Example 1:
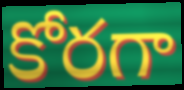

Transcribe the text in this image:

కోరగా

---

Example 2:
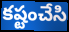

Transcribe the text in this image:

కష్టంచేసి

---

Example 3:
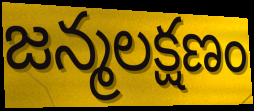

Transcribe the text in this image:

జన్మలక్షణం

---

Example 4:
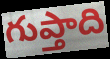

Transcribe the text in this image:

గుప్తాది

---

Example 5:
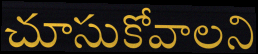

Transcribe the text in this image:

చూసుకోవాలని